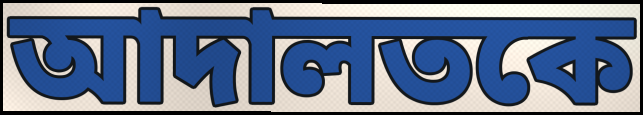
আদালতকে